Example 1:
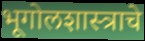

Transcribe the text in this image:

भूगोलशास्त्राचे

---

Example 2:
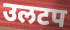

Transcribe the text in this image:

उलटप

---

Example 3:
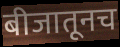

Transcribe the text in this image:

बीजातूनच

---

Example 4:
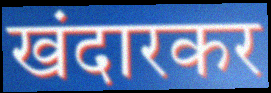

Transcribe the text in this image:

खंदारकर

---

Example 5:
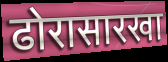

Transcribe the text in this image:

ढोरासारखा